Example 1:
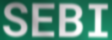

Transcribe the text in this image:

SEBI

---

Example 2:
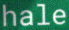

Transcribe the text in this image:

hale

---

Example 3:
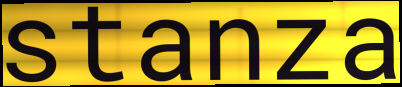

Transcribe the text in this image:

stanza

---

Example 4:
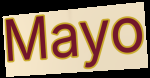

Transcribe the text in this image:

Mayo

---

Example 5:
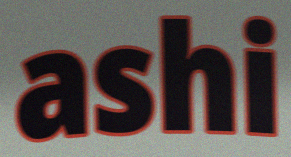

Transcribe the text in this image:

ashi